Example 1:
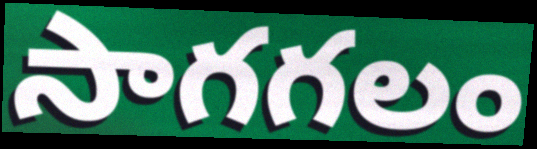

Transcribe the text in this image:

సాగగలం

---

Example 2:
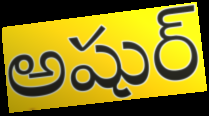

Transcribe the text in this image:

అషుర్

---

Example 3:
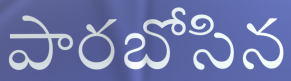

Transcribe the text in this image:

పారబోసిన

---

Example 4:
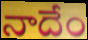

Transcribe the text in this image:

నాదేం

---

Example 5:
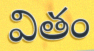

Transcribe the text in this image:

వితం